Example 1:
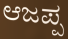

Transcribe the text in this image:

ಆಜಪ್ಪ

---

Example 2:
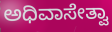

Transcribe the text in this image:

ಅಧಿವಾಸೇತ್ವಾ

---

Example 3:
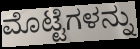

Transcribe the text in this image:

ಮೊಟ್ಟೆಗಳನ್ನು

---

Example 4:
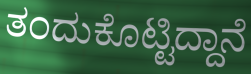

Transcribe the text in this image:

ತಂದುಕೊಟ್ಟಿದ್ದಾನೆ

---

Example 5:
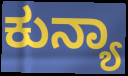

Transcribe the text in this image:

ಕುನ್ಯಾ